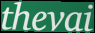
thevai